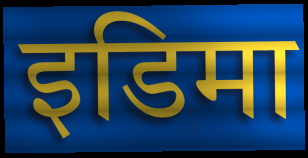
इडिमा